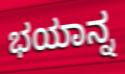
ಭಯಾನ್ನ